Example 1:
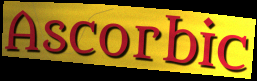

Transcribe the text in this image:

Ascorbic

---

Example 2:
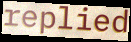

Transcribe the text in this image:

replied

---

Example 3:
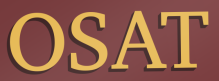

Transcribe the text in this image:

OSAT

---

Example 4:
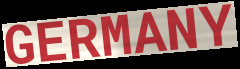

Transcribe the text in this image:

GERMANY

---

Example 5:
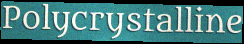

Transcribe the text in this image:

Polycrystalline